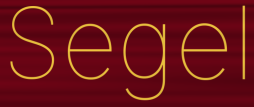
Segel